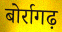
बोर्रागढ़